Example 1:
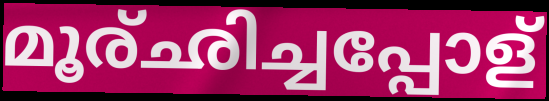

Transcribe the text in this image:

മൂര്ഛിച്ചപ്പോള്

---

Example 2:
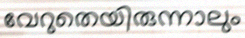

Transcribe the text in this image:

വേറുതെയിരുന്നാലും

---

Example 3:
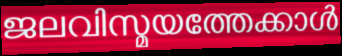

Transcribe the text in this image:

ജലവിസ്മയത്തേക്കാൾ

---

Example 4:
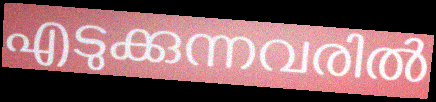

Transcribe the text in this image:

എടുക്കുന്നവരിൽ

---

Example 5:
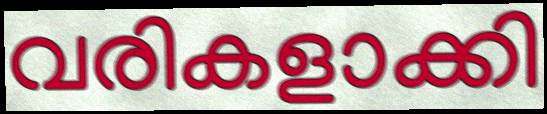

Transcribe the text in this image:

വരികളാക്കി